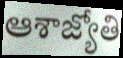
ఆశాజ్యోతి